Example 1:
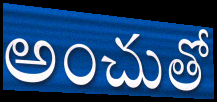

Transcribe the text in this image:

అంచుతో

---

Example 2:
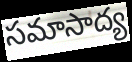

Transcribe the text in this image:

సమాసాద్య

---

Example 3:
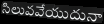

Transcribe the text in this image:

సిలువవేయుదునా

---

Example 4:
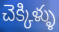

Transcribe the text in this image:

చెక్కిళ్ళు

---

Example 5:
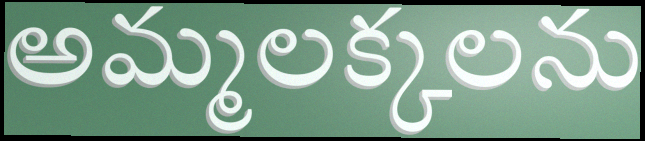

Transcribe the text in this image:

అమ్మలక్కలను